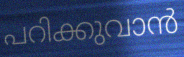
പറിക്കുവാൻ